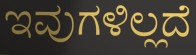
ಇವುಗಳಿಲ್ಲದೆ